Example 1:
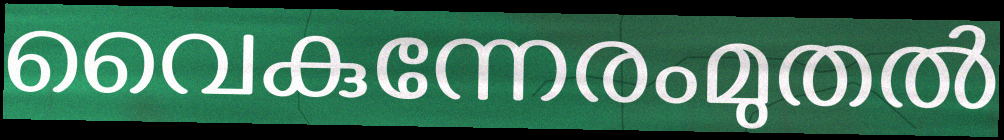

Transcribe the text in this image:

വൈകുന്നേരംമുതൽ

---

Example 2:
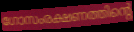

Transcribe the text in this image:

ഗോസംരക്ഷണത്തിന്റെ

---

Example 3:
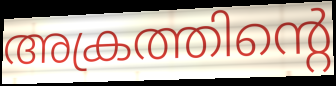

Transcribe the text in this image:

അക്രത്തിന്റെ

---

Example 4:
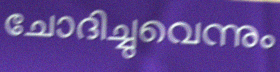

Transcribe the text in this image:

ചോദിച്ചുവെന്നും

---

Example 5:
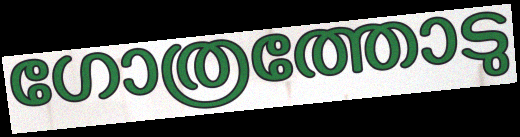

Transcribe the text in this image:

ഗോത്രത്തോടു